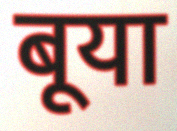
बूया